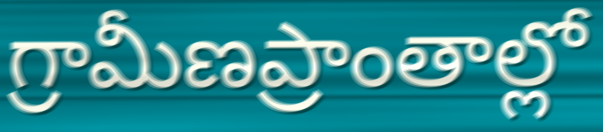
గ్రామీణప్రాంతాల్లో